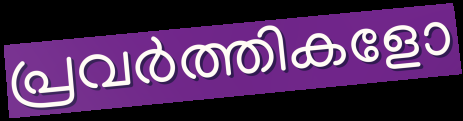
പ്രവർത്തികളോ